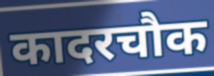
कादरचौक